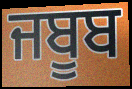
ਜਬੂਬ